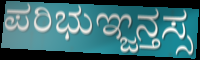
ಪರಿಭುಞ್ಜನ್ತಸ್ಸ